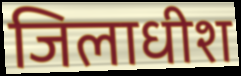
जिलाधीश